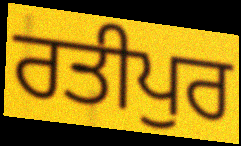
ਰਤੀਪੁਰ